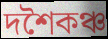
দশৈকঞ্চ